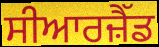
ਸੀਆਰਜ਼ੈੱਡ